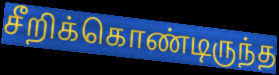
சீறிக்கொண்டிருந்த